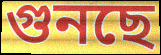
গুনছে